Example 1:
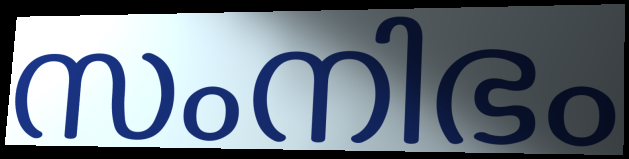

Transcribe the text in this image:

സംനിഭം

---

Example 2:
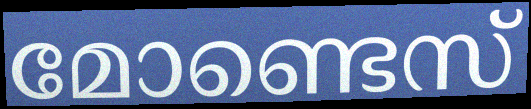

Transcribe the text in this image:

മോണ്ടെസ്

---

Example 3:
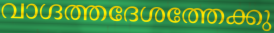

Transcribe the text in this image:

വാഗ്ദത്തദേശത്തേക്കു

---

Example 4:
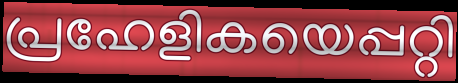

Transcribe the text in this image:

പ്രഹേളികയെപ്പറ്റി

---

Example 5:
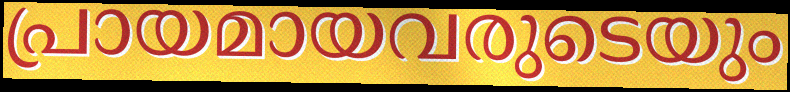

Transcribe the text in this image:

പ്രായമായവരുടെയും